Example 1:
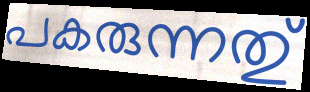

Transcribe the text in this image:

പകരുന്നതു്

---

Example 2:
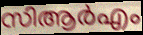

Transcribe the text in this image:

സിആർഎം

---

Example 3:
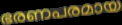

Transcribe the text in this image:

ഭരണപരമായ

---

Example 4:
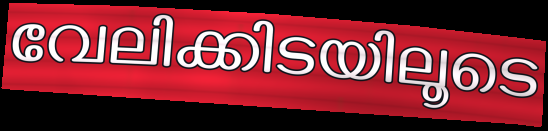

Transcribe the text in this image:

വേലിക്കിടയിലൂടെ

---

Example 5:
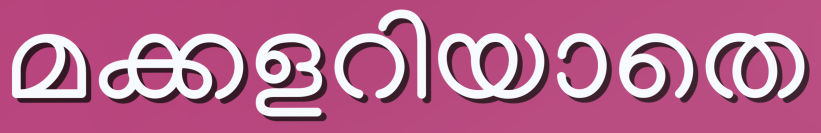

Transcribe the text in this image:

മക്കളറിയാതെ